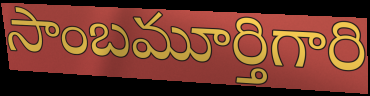
సాంబమూర్తిగారి